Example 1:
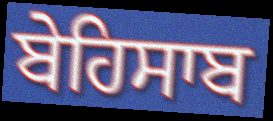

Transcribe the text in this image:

ਬੇਹਿਸਾਬ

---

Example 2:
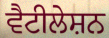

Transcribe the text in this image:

ਵੈਟੀਲੇਸ਼ਨ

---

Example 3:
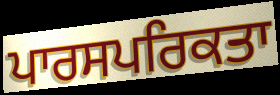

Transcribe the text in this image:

ਪਾਰਸਪਰਿਕਤਾ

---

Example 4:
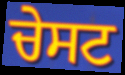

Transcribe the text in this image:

ਚੇਸਟ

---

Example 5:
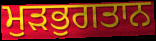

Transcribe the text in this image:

ਮੁੜਭੁਗਤਾਨ